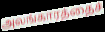
அலங்காரத்தைச்